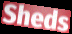
Sheds